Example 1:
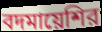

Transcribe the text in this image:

বদমায়েশির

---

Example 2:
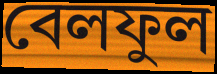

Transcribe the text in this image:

বেলফুল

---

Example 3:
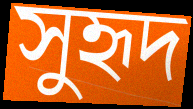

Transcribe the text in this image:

সুহৃদ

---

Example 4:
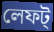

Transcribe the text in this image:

লেফট্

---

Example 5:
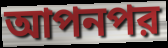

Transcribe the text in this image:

আপনপর